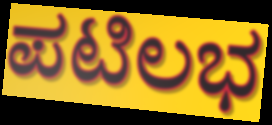
ಪಟಿಲಭ